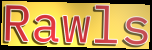
Rawls